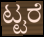
ಟ್ಟರೆ